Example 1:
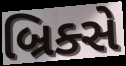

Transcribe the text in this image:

બ્રિક્સે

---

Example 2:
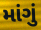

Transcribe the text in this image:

માંગું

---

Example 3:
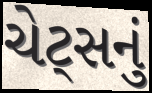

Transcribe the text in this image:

ચેટ્સનું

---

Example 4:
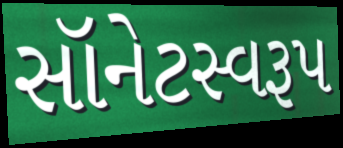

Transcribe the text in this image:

સૉનેટસ્વરૂપ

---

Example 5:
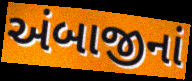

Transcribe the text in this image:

અંબાજીનાં